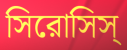
সিরোসিস্